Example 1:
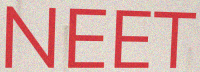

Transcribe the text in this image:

NEET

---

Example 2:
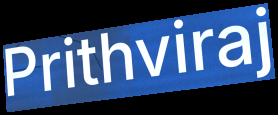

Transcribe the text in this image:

Prithviraj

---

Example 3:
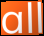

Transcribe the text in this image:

all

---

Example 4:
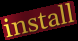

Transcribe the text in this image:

install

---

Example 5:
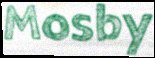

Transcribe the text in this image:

Mosby